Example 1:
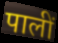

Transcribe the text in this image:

पालीं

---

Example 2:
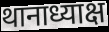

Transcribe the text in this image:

थानाध्याक्ष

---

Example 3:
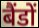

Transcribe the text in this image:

बैंडों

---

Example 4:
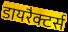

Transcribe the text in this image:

डायरैक्टर्स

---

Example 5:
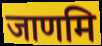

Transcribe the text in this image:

जाणमि